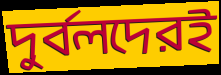
দুর্বলদেরই